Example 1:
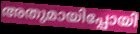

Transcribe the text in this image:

അതുമായിപ്പോയി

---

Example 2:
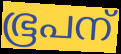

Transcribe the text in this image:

ഭൂപന്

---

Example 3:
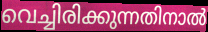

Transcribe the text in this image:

വെച്ചിരിക്കുന്നതിനാൽ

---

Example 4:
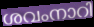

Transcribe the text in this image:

ശവംനാറി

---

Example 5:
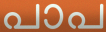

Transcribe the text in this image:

പാപ